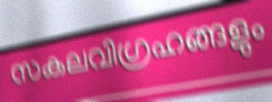
സകലവിഗ്രഹങ്ങളും